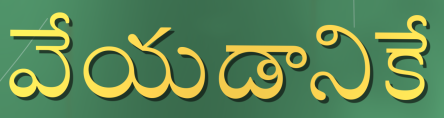
వేయడానికే